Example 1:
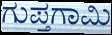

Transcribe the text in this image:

ಗುಪ್ತಗಾಮಿ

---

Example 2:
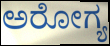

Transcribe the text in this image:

ಅರೋಗ್ಯ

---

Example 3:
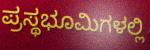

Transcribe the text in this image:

ಪ್ರಸ್ಥಭೂಮಿಗಳಲ್ಲಿ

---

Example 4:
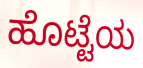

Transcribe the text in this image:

ಹೊಟ್ಟೆಯ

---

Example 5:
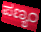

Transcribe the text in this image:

ಪಣ್ಯಂ